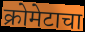
क्रोमेटाचा